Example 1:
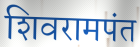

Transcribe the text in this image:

शिवरामपंत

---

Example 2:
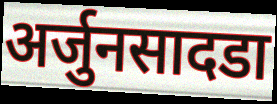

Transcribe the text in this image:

अर्जुनसादडा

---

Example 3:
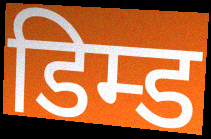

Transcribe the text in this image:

डिम्ड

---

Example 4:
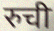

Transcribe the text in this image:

रुची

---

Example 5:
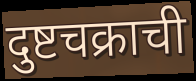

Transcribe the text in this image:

दुष्टचक्राची